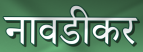
नावडीकर